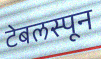
टेबलस्पून